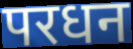
परधन